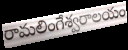
రామలింగేశ్వరాలయం